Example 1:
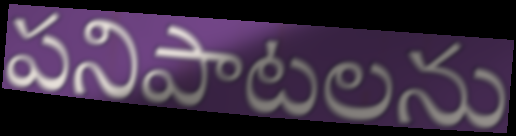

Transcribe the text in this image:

పనిపాటలను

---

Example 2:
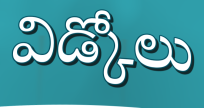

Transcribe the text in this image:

విడ్కోలు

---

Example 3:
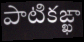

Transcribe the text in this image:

పాటికఙ్ఖా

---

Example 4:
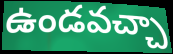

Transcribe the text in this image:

ఉండవచ్చా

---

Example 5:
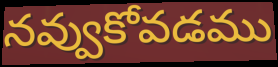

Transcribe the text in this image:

నవ్వుకోవడము